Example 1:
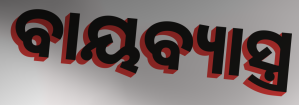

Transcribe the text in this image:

ବାୟବ୍ୟାସ୍ତ୍ର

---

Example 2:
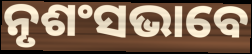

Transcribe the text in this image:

ନୃଶଂସଭାବେ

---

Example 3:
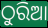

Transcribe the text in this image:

ଠୁରିଆ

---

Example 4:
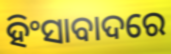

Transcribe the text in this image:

ହିଂସାବାଦରେ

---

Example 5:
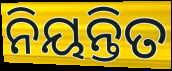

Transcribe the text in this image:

ନିୟନ୍ତିତ